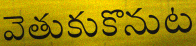
వెతుకుకొనుట